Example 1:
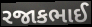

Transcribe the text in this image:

રજાકભાઈ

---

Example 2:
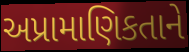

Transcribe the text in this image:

અપ્રામાણિકતાને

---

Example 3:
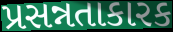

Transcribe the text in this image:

પ્રસન્નતાકારક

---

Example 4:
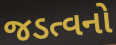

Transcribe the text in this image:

જડત્વનો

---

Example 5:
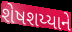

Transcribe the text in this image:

શેષશય્યાને